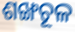
ଶଙ୍ଖଚୂଳ